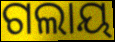
ଗଲାୟ